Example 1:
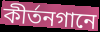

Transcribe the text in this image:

কীর্তনগানে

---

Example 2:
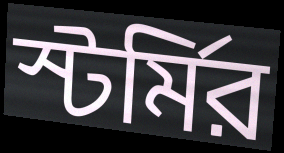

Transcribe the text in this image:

স্টর্মির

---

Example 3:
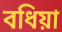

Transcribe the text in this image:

বধিয়া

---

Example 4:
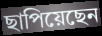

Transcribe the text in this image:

ছাপিয়েছেন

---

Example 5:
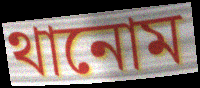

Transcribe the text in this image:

থানোম